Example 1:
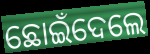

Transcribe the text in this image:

ଛୋଇଁଦେଲେ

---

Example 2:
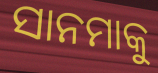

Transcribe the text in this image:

ସାନମାକୁ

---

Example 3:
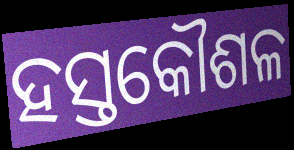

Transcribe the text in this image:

ହସ୍ତକୌଶଳ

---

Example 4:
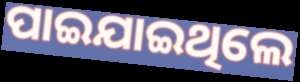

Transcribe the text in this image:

ପାଇଯାଇଥିଲେ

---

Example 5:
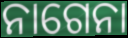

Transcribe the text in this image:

ନାଗେନା